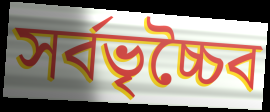
সর্বভৃচ্চৈব